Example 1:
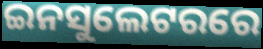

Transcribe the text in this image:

ଇନସୁଲେଟରରେ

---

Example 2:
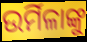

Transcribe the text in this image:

ଉର୍ମିଳାଙ୍କୁ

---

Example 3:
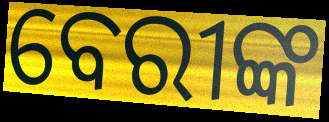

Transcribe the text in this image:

ବେରୀଙ୍କ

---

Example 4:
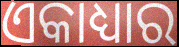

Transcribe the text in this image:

ଏକାଧ୍ୟାର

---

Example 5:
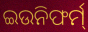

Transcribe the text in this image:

ଇଉନିଫର୍ମ୍